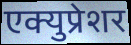
एक्युप्रेशर